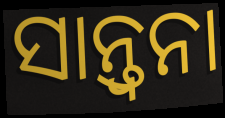
ସାନ୍ତ୍ୱନା